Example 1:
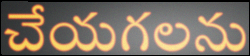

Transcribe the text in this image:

చేయగలను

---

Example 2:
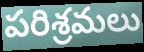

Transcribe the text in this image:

పరిశ్రమలు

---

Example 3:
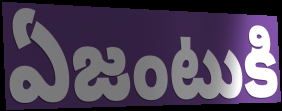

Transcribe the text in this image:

ఏజంటుకి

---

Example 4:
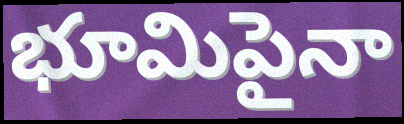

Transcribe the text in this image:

భూమిపైనా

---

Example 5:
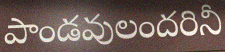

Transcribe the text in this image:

పాండవులందరినీ